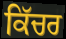
ਕਿੱਚਰ